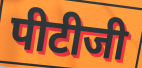
पीटीजी